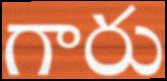
గారు